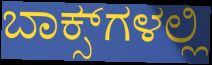
ಬಾಕ್ಸ್‌ಗಳಲ್ಲಿ